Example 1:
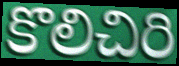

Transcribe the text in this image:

కొలిచిరి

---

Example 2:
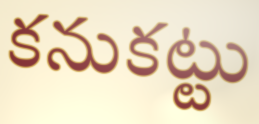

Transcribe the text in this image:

కనుకట్టు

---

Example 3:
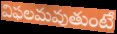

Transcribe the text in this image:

విఫలమవుతుంటే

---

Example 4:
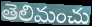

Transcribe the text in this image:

తెలిమంచు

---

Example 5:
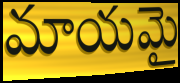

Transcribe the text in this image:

మాయమై